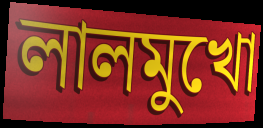
লালমুখো